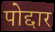
पोद्दार